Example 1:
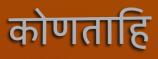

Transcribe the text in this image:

कोणताहि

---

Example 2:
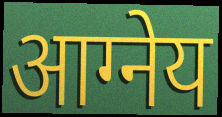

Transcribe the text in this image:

आग्नेय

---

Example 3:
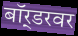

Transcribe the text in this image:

बॉर्डरवर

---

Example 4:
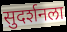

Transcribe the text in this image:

सुदर्शनला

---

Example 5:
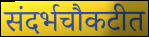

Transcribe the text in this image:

संदर्भचौकटीत